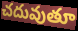
చదువుతూ